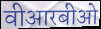
वीआरबीओ